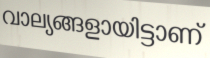
വാല്യങ്ങളായിട്ടാണ്